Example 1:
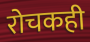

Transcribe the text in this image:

रोचकही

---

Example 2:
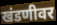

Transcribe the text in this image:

खंडणीवर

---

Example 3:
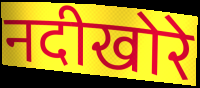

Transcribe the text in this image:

नदीखोरे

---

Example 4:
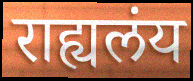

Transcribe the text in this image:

राह्यलंय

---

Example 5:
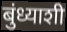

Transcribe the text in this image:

बुंध्याशी